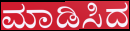
ಮಾಡಿಸಿದ